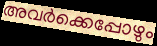
അവർക്കെപ്പോഴും